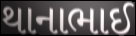
થાનાભાઈ